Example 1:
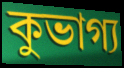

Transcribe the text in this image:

কুভাগ্য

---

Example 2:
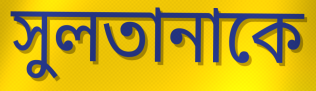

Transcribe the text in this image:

সুলতানাকে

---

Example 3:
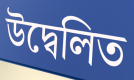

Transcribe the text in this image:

উদ্বেলিত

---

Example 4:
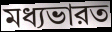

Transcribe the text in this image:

মধ্যভারত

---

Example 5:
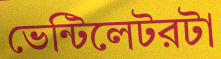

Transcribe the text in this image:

ভেন্টিলেটরটা